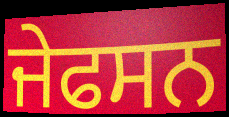
ਜੇਫਸਨ